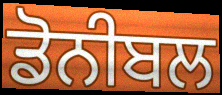
ਡੋਨੀਬਲ